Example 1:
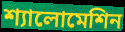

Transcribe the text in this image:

শ্যালোমেশিন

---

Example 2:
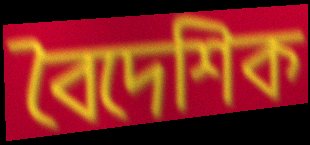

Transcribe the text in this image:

বৈদেশিক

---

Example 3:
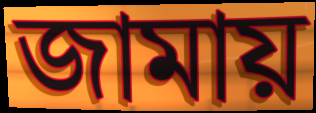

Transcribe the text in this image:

জামায়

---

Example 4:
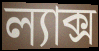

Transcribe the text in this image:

ল্যাক্স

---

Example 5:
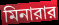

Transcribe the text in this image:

মিনারার